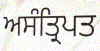
ਅਸੰਤ੍ਰਿਪਤ